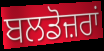
ਬਲਡੋਜ਼ਰਾਂ